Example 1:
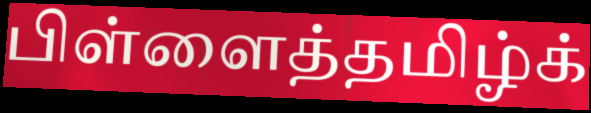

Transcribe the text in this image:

பிள்ளைத்தமிழ்க்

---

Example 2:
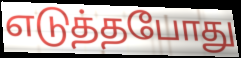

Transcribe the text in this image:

எடுத்தபோது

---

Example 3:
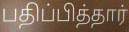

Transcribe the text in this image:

பதிப்பித்தார்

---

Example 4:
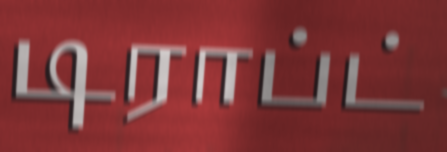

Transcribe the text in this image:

டிராப்ட்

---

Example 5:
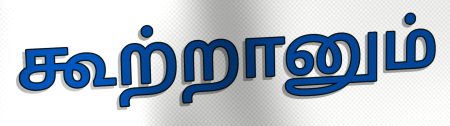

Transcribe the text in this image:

கூற்றானும்